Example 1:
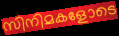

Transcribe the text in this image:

സിനിമകളോടെ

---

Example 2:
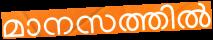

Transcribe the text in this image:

മാനസത്തിൽ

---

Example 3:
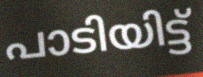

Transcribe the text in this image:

പാടിയിട്ട്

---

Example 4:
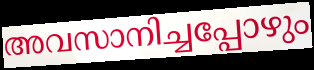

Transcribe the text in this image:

അവസാനിച്ചപ്പോഴും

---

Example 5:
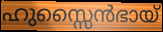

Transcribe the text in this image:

ഹുസ്സൈൻഭായ്